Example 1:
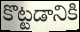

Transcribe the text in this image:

కొట్టడానికి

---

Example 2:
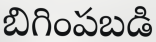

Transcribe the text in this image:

బిగింపబడి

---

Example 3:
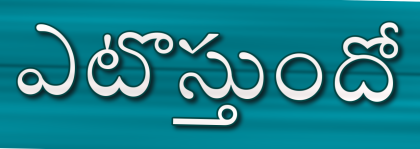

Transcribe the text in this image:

ఎటొస్తుందో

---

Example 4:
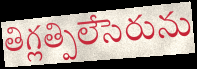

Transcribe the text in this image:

తిగ్లత్పిలేసెరును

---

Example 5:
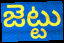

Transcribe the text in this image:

జెట్టు